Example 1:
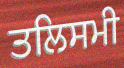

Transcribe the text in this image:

ਤਲਿਸਮੀ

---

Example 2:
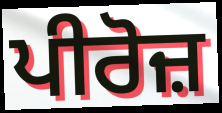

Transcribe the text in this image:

ਪੀਰੋਜ਼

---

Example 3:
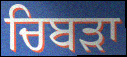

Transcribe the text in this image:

ਚਿਬੜਾ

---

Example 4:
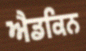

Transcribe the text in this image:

ਐਡਕਿਨ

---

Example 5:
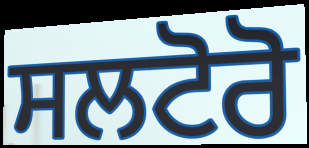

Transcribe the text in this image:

ਸਲਟੋਰੋ